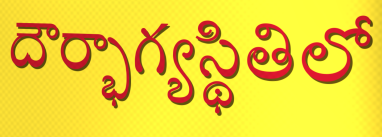
దౌర్భాగ్యస్థితిలో